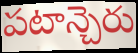
పటాన్చెరు